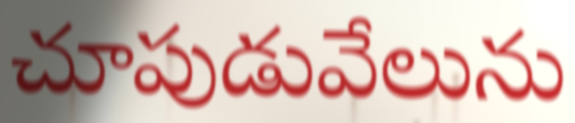
చూపుడువేలును